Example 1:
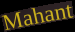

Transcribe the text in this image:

Mahant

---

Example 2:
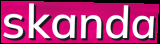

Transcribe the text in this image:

skanda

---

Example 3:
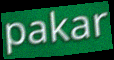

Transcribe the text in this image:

pakar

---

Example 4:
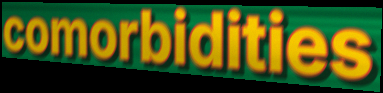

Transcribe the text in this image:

comorbidities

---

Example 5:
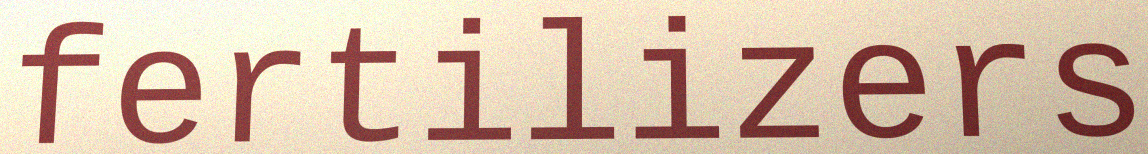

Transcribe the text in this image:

fertilizers